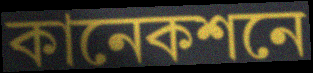
কানেকশনে